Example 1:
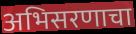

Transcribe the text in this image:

अभिसरणाचा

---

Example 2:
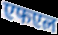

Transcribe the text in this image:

एफएल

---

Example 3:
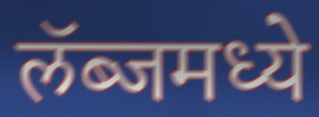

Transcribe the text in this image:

लॅब्जमध्ये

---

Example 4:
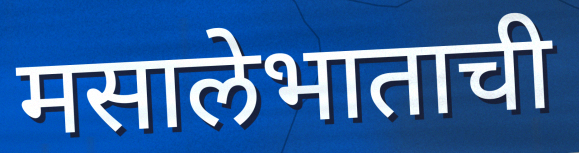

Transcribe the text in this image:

मसालेभाताची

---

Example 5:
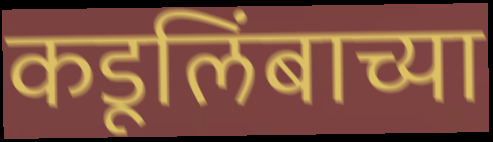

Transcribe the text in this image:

कडूलिंबाच्या